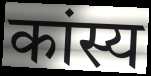
कांस्य